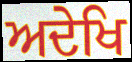
ਅਦੇਖਿ